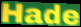
Hade